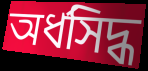
অর্ধসিদ্ধ